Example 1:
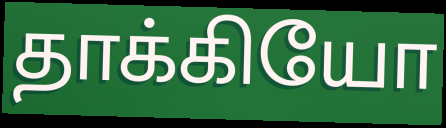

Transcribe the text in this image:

தாக்கியோ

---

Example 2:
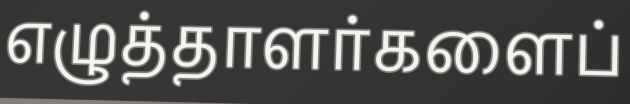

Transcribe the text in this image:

எழுத்தாளர்களைப்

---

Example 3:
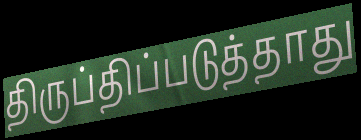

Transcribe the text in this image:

திருப்திப்படுத்தாது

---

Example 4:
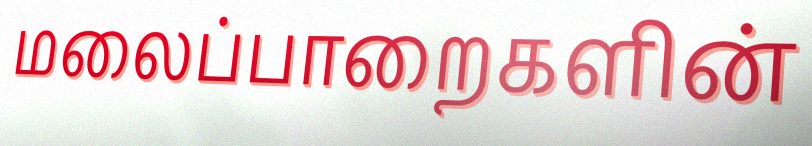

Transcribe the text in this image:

மலைப்பாறைகளின்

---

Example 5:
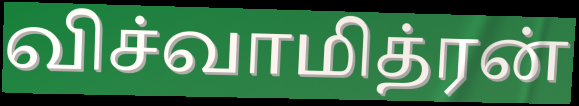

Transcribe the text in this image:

விச்வாமித்ரன்